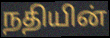
நதியின்